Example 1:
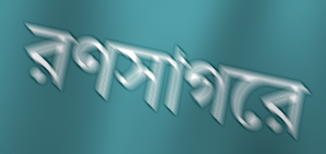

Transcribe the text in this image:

রণসাগরে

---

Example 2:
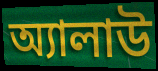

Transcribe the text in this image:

অ্যালাউ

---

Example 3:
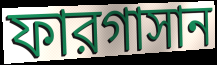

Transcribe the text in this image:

ফারগাসান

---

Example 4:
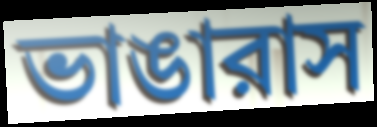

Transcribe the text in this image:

ভাঙারাস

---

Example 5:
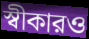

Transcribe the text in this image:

স্বীকারও